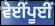
ਵੇਈਂਪੂਈਂ